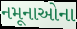
નમૂનાઓના